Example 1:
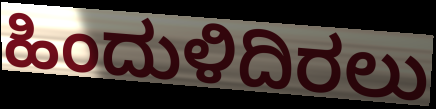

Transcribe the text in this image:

ಹಿಂದುಳಿದಿರಲು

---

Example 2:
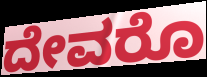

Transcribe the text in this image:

ದೇವರೊ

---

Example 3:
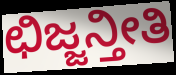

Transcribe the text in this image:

ಛಿಜ್ಜನ್ತೀತಿ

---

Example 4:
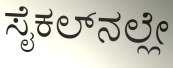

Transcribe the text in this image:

ಸೈಕಲ್‌ನಲ್ಲೇ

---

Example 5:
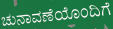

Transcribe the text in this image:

ಚುನಾವಣೆಯೊಂದಿಗೆ